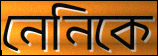
নেনিকে